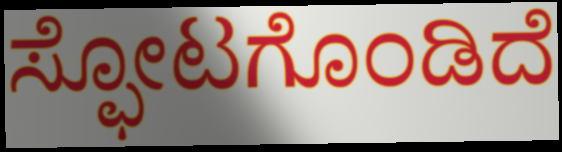
ಸ್ಫೋಟಗೊಂಡಿದೆ